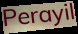
Perayil